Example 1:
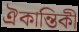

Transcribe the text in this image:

ঐকান্তিকী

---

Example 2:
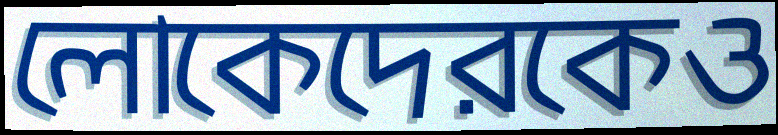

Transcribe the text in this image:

লোকেদেরকেও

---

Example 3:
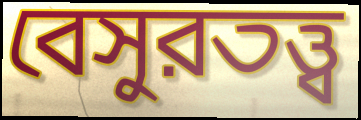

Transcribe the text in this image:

বেসুরতত্ত্ব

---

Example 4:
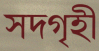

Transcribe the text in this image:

সদগৃহী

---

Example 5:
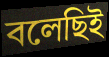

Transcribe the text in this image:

বলেছিই